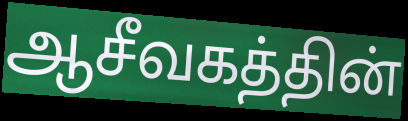
ஆசீவகத்தின்